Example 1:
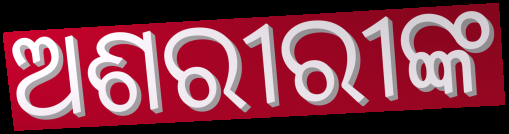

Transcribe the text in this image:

ଅଶରୀରୀଙ୍କ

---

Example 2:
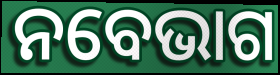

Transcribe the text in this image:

ନବେଭାଗ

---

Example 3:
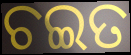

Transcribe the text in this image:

ଚଇତ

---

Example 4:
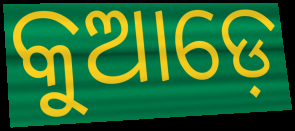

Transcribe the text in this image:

କୁଆଡ଼େ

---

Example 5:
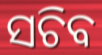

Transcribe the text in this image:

ସଚିବ